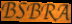
BSBRA